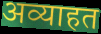
अव्याहत